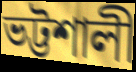
ভট্টশালী